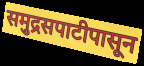
समुद्रसपाटीपासून